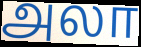
அலா